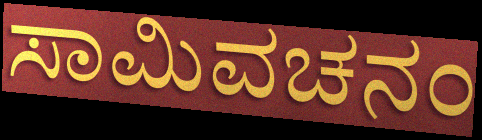
ಸಾಮಿವಚನಂ